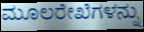
ಮೂಲರೇಖೆಗಳನ್ನು